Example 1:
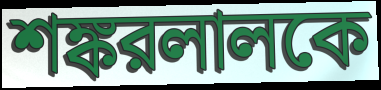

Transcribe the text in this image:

শঙ্করলালকে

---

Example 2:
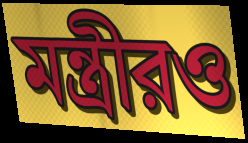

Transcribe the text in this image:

মন্ত্রীরও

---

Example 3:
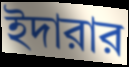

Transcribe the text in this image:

ইদারার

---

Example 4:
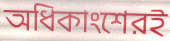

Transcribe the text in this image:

অধিকাংশেরই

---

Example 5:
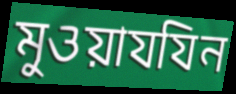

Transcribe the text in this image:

মুওয়াযযিন